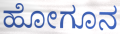
ಹೋಗೂನ